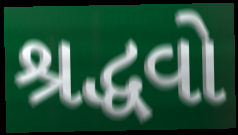
શ્રદ્ધવો